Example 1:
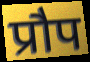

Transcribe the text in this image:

प्रौप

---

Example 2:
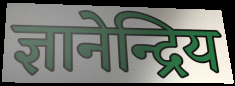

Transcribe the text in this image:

ज्ञानेन्द्रिय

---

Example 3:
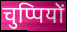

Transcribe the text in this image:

चुप्पियों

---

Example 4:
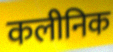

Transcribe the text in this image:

कलीनिक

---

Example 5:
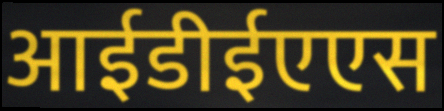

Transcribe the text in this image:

आईडीईएएस